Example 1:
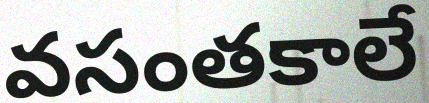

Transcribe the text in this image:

వసంతకాలే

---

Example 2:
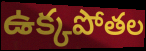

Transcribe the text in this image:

ఉక్కపోతల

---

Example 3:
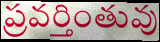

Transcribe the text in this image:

ప్రవర్తింతువు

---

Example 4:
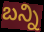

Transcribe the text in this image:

బన్ని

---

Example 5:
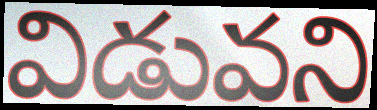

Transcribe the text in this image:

విడువని